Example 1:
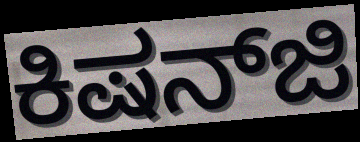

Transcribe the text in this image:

ಕಿಷನ್‌ಜಿ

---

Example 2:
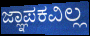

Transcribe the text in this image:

ಜ್ಞಾಪಕವಿಲ್ಲ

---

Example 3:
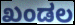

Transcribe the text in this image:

ಖಂಡಲ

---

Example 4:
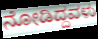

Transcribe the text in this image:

ನೋಡಿದ್ದವಳು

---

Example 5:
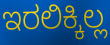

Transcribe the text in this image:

ಇರಲಿಕ್ಕಿಲ್ಲ